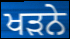
ਖੜਨੇ